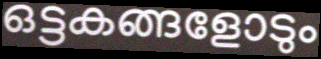
ഒട്ടകങ്ങളോടും